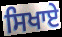
ਸਿਖਾਏ